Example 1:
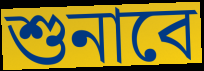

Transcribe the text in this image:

শুনাবে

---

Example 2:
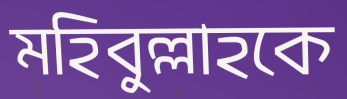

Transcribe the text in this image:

মহিবুল্লাহকে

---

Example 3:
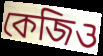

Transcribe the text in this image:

কেজিও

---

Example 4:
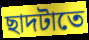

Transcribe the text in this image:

ছাদটাতে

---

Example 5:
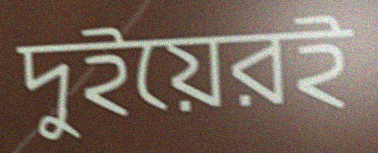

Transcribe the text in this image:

দুইয়েরই